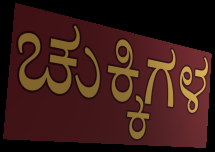
ಚುಕ್ಕಿಗಳ